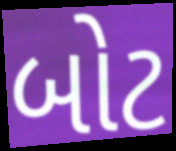
બોટ